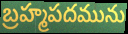
బ్రహ్మపదమును